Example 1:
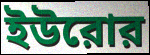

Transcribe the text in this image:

ইউরোর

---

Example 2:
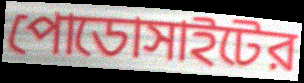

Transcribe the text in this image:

পোডোসাইটের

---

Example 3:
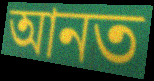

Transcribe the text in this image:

আনত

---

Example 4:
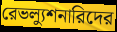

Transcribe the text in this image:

রেভল্যুশনারিদের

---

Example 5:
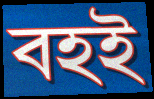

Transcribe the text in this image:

বহই